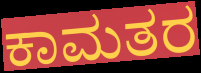
ಕಾಮತರ